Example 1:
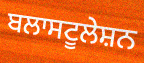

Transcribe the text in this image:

ਬਲਾਸਟੂਲੇਸ਼ਨ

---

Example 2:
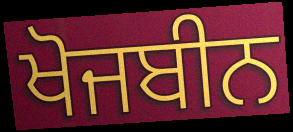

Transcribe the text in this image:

ਖੋਜਬੀਨ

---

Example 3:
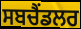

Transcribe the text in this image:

ਸਬਚੈਂਡਲਰ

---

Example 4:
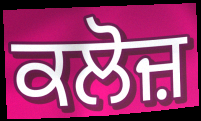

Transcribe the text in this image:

ਕਲੋਜ਼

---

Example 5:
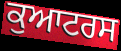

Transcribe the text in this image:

ਕੁਆਟਰਸ